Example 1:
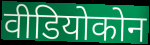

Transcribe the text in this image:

वीडियोकोन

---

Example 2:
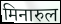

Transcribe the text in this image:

मिनारुल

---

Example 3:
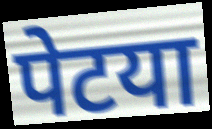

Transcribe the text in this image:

पेटया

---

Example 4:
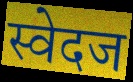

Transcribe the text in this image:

स्वेदज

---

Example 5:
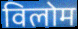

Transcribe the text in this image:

विलोम